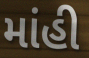
માંહી